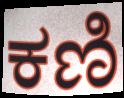
ಕಣಿ